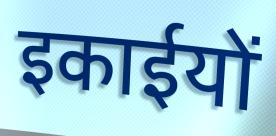
इकाईयों